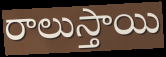
రాలుస్తాయి